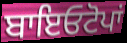
ਬਾਇਓਟੋਪਾਂ